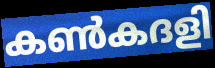
കൺകദളി